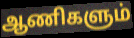
ஆணிகளும்